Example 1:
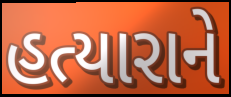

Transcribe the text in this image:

હત્યારાને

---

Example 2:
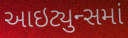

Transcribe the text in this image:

આઇટ્યુન્સમાં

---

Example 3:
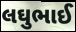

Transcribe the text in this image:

લઘુભાઈ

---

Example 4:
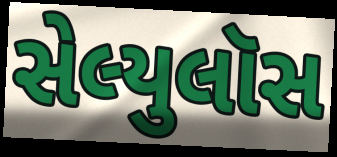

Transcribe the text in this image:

સેલ્યુલૉસ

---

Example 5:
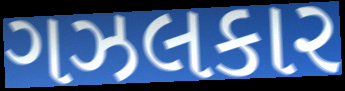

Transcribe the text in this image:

ગઝલકાર